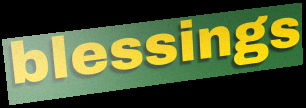
blessings